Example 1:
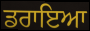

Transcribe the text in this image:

ਡਰਾਇਆ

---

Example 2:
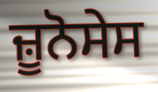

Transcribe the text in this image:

ਜ਼ੂਨੋਸੇਸ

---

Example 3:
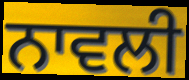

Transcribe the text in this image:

ਨਾਵਲੀ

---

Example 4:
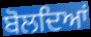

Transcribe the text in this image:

ਬੋਲਦਿਆਂ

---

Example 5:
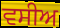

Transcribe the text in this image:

ਵਸੀਅ